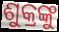
ଶୁକ୍ରଙ୍କୁ